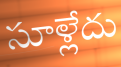
సూళ్లేదు